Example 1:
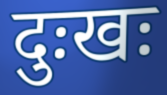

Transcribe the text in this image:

दुःखः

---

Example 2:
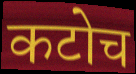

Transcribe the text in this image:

कटोच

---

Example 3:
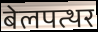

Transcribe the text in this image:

बेलपत्थर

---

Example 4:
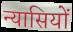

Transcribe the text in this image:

न्यासियों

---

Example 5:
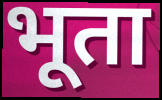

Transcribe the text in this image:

भूता